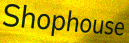
Shophouse